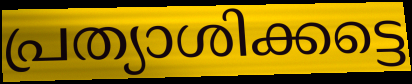
പ്രത്യാശിക്കട്ടെ